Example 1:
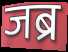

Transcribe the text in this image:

जब्र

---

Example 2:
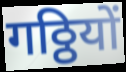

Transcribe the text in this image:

गठ्ठियों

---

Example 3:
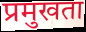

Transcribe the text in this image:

प्रमुखता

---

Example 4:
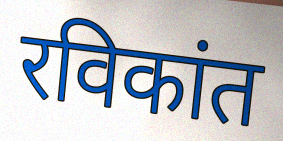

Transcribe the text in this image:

रविकांत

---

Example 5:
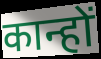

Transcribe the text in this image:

कान्हों